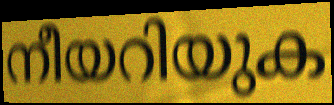
നീയറിയുക